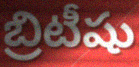
బ్రిటీషు